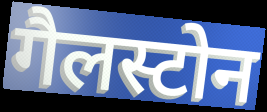
गैलस्टोन